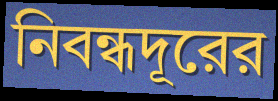
নিবন্ধদূরের